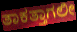
ತಾಕತ್ತಾಗಲೀ